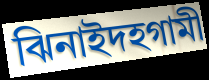
ঝিনাইদহগামী